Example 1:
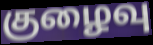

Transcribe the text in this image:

குழைவு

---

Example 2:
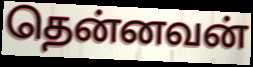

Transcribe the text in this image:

தென்னவன்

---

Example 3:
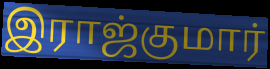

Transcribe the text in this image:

இராஜ்குமார்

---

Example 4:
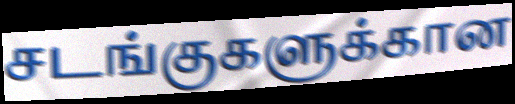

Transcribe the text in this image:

சடங்குகளுக்கான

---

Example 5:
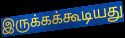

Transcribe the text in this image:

இருக்கக்கூடியது